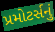
પ્રમોટર્સનું